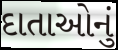
દાતાઓનું